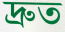
দ্রুত